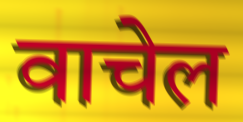
वाचेल